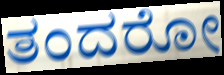
ತಂದರೋ